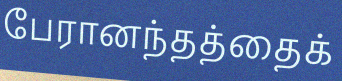
பேரானந்தத்தைக்